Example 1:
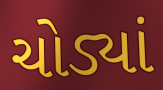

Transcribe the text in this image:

ચોડ્યાં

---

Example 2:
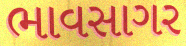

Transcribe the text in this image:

ભાવસાગર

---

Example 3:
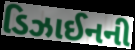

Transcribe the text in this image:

ડિઝાઈનની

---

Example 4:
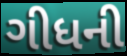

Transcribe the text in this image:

ગીધની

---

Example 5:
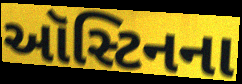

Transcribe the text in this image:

ઑસ્ટિનના